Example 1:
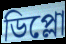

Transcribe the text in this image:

ডিপ্লো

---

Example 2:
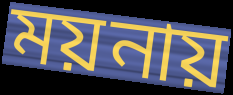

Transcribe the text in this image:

ময়নায়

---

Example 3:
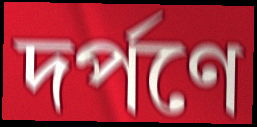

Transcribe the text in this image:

দর্পণে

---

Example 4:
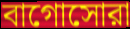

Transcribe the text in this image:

বাগোসোরা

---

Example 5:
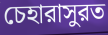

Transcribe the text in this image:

চেহারাসুরত